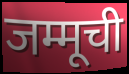
जम्मूची